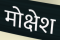
मोक्षेश